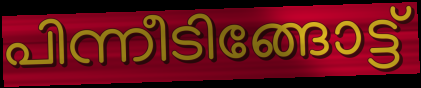
പിന്നീടിങ്ങോട്ട്